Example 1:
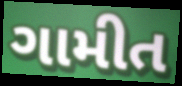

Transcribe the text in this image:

ગામીત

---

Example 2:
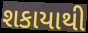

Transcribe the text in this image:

શકાયાથી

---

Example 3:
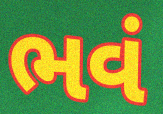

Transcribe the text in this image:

ભવં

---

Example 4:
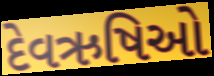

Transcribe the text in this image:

દેવઋષિઓ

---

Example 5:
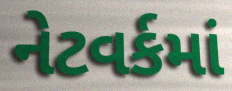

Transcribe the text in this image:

નેટવર્કમાં